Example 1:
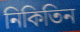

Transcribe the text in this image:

নিকিতিন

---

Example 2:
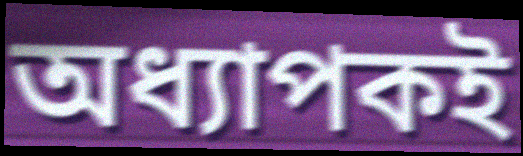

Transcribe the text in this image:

অধ্যাপকই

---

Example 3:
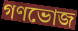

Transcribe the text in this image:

গণভোজ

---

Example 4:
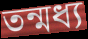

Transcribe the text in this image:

তন্মধ্য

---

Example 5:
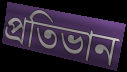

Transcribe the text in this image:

প্রতিভান